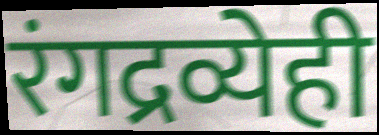
रंगद्रव्येही